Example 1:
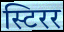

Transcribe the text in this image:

स्टिरर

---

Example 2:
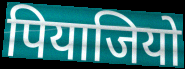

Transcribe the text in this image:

पियाजियो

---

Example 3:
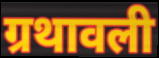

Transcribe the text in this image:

ग्रथावली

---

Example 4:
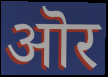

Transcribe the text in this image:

ऒर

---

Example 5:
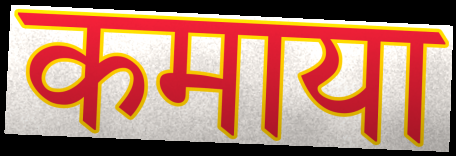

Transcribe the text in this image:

कमाया